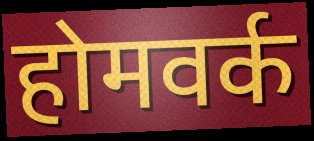
होमवर्क